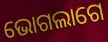
ଭୋଗଲାଗେ